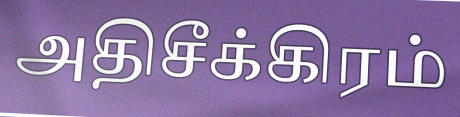
அதிசீக்கிரம்